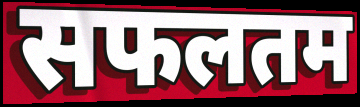
सफलतम